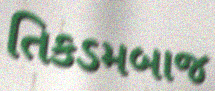
તિકડમબાજ